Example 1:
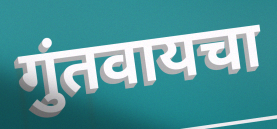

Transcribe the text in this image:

गुंतवायचा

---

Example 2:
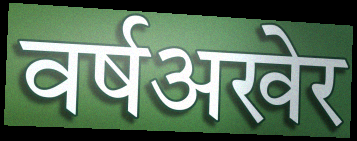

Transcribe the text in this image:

वर्षअखेर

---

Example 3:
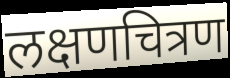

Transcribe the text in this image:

लक्षणचित्रण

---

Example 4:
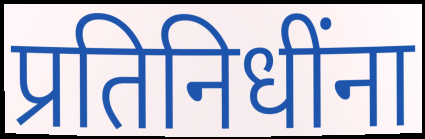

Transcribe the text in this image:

प्रतिनिधींना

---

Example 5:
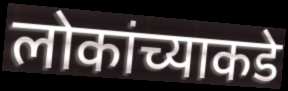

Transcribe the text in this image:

लोकांच्याकडे